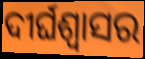
ଦୀର୍ଘଶ୍ବାସର